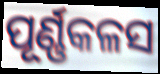
ପୂର୍ଣ୍ଣକଳସ